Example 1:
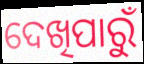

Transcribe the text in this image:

ଦେଖିପାରୁଁ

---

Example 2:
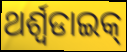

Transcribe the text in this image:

ଥର୍ଶ୍ଵଡାଇକ୍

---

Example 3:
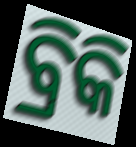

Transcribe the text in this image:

ବ୍ରିକି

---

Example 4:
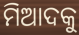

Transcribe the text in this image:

ମିଆଦକୁ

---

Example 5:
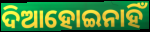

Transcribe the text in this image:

ଦିଆହୋଇନାହିଁ